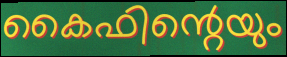
കൈഫിന്റെയും